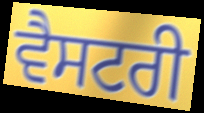
ਵੈਸਟਰੀ